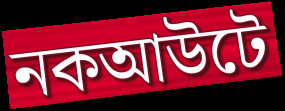
নকআউটে